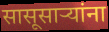
सासूसाऱ्यांना